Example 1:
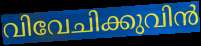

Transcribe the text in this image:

വിവേചിക്കുവിൻ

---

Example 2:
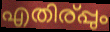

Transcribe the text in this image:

എതിര്പ്പും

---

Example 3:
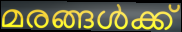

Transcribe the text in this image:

മരങ്ങൾക്ക്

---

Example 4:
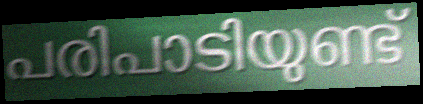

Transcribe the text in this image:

പരിപാടിയുണ്ട്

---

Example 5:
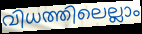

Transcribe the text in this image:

വിധത്തിലെല്ലാം